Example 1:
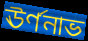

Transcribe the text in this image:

ঊর্ণনাভ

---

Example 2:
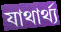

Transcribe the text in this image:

যাথার্থ্য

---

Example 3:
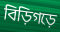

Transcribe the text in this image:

বিড়িগড়ে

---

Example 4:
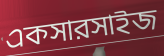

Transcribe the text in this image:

একসারসাইজ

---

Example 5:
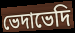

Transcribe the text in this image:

ভেদাভেদি